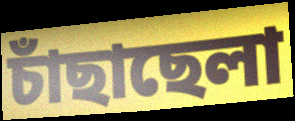
চাঁছাছেলা